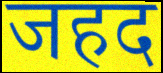
जहद